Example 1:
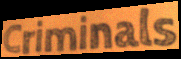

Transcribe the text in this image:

Criminals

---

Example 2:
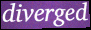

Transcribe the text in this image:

diverged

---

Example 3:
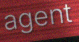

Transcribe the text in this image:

agent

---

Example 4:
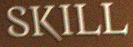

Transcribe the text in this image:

SKILL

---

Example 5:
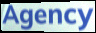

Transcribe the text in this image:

Agency